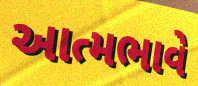
આત્મભાવે